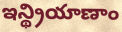
ఇన్థ్రియాణాం